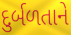
દુર્બળતાને